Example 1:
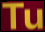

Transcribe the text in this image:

Tu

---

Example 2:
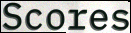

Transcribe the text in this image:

Scores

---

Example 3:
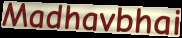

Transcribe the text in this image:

Madhavbhai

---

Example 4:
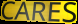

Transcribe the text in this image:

CARES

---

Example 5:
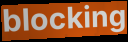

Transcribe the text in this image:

blocking